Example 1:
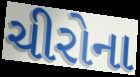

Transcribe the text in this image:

ચીરોના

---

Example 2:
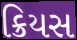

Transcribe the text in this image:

ક્રિયસ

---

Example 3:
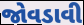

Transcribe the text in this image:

જોવડાવી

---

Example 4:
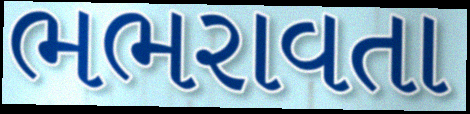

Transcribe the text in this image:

ભભરાવતા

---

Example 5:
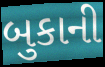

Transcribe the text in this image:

બુકાની